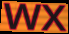
wx